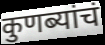
कुणब्यांचं